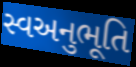
સ્વઅનુભૂતિ